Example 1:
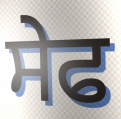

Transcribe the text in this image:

ਸੇਫ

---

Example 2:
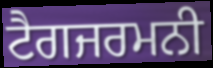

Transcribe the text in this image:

ਟੈਗਜਰਮਨੀ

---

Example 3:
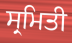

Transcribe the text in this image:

ਸ੍ਰਮਿਤੀ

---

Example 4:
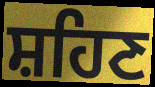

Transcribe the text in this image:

ਸ਼ਹਿਣ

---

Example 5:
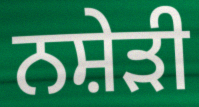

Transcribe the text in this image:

ਨਸ਼ੇੜੀ